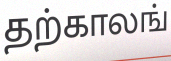
தற்காலங்